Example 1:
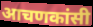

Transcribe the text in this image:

आचणकांसी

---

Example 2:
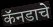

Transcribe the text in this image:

कॅनडाचे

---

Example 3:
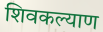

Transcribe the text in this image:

शिवकल्याण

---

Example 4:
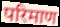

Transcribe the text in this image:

परिमाण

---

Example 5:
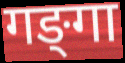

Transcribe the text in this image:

गङ्‍गा